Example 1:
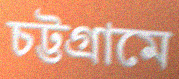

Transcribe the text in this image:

চট্টগ্রামে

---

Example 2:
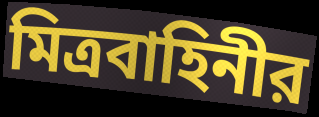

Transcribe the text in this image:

মিত্রবাহিনীর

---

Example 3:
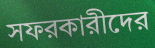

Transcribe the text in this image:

সফরকারীদের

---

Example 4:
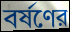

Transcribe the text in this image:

বর্ষণের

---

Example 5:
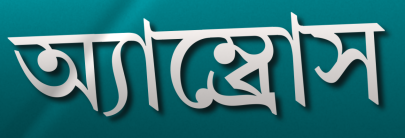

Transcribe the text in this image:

অ্যাম্ব্রোস